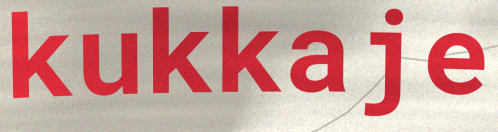
kukkaje